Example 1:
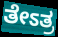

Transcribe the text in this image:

ತೇಽತ್ರ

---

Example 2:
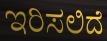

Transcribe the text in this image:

ಇರಿಸಲಿದೆ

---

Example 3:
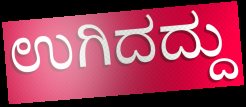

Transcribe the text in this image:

ಉಗಿದದ್ದು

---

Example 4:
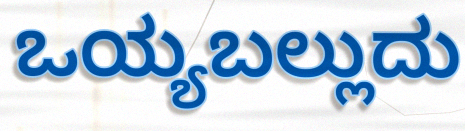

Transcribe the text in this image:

ಒಯ್ಯಬಲ್ಲುದು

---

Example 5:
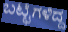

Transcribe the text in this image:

ಬಟ್ಟೆಗಳಿದ್ದ